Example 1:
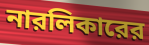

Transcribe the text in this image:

নারলিকারের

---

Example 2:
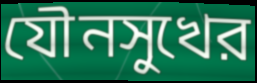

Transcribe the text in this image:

যৌনসুখের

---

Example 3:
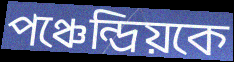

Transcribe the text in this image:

পঞ্চেন্দ্রিয়কে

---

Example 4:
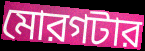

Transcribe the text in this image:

মোরগটার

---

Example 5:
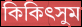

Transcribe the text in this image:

কিকিৎসুম